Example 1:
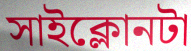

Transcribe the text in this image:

সাইক্লোনটা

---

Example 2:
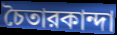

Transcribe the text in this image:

চৈতারকান্দা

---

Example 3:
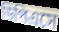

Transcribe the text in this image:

ডিপিএসে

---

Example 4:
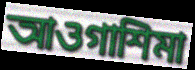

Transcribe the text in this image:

আওগাশিমা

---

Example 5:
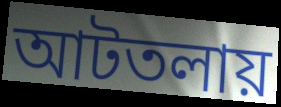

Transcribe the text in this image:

আটতলায়